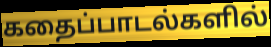
கதைப்பாடல்களில்